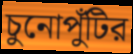
চুনোপুঁটির